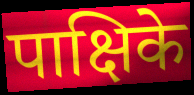
पाक्षिके